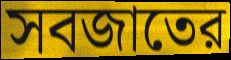
সবজাতের